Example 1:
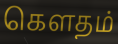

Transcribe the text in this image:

கௌதம்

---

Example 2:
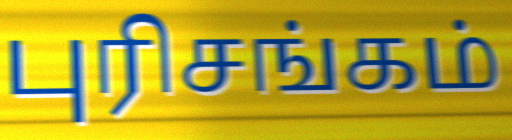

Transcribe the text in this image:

புரிசங்கம்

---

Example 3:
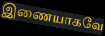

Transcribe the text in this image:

இணையாகவே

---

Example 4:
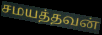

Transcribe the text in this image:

சமயத்தவன்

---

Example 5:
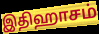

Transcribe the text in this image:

இதிஹாசம்